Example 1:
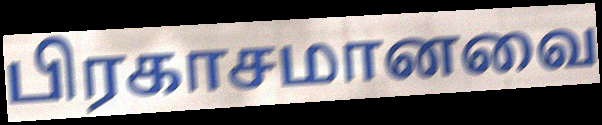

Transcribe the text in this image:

பிரகாசமானவை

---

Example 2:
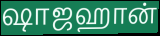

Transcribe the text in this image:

ஷாஜஹான்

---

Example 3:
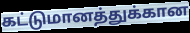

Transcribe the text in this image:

கட்டுமானத்துக்கான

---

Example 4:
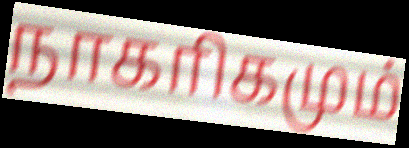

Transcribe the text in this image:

நாகரிகமும்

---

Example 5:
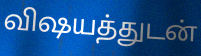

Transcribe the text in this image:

விஷயத்துடன்